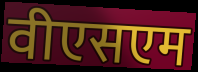
वीएसएम